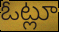
ఓట్లూ